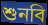
শুনবি